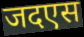
जदएस